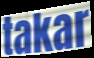
takar